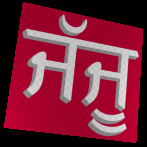
ਜੱਜੂ